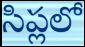
సిప్లలో